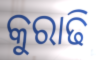
କୁରାଢି